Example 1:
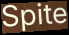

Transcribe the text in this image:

Spite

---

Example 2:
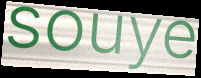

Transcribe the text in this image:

souye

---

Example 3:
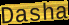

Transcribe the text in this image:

Dasha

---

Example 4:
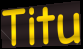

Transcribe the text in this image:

Titu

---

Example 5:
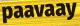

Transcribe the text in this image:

paavaay